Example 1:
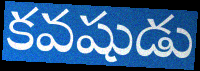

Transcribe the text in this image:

కవషుడు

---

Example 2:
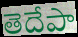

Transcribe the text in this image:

తెదేపా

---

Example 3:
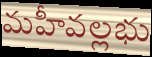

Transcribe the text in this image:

మహీవల్లభు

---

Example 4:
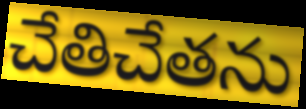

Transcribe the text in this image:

చేతిచేతను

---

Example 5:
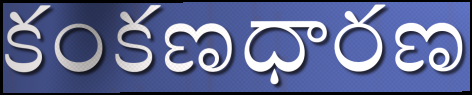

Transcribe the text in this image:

కంకణధారణ